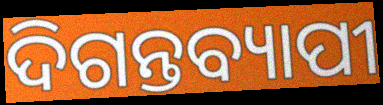
ଦିଗନ୍ତବ୍ୟାପୀ